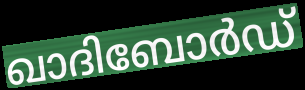
ഖാദിബോർഡ്